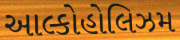
આલ્કોહોલિઝમ